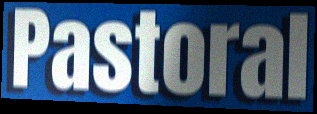
Pastoral